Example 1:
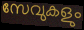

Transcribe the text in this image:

സേവുകളും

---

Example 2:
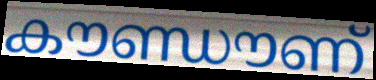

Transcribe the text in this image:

കൗണ്ഡൗണ്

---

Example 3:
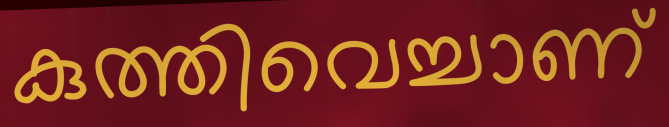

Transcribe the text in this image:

കുത്തിവെച്ചാണ്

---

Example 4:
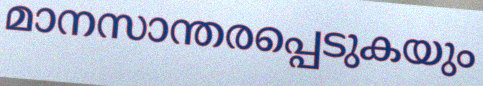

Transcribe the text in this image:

മാനസാന്തരപ്പെടുകയും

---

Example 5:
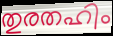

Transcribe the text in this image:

തുരതഹിം